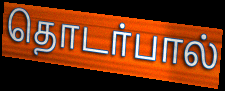
தொடர்பால்